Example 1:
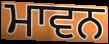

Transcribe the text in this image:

ਮਾਵਨ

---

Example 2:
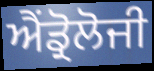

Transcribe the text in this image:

ਐਂਡ੍ਰੋਲੋਜੀ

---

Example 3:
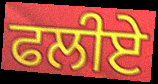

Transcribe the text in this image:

ਫਲੀਏ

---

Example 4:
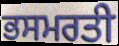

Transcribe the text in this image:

ਭਸਮਰਤੀ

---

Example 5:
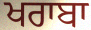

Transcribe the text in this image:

ਖਰਾਬਾ